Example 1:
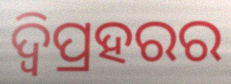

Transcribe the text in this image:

ଦ୍ୱିପ୍ରହରର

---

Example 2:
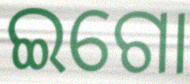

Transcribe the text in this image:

ଇଗୋ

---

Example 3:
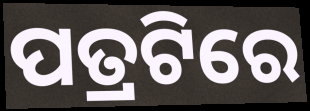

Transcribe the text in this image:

ପତ୍ରଟିରେ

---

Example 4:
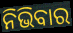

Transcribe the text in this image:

ନିଭିବାର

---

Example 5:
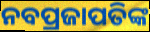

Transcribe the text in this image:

ନବପ୍ରଜାପତିଙ୍କ